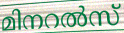
മിനറൽസ്